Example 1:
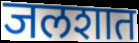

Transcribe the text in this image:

जलशात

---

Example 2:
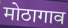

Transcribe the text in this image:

मोठागाव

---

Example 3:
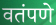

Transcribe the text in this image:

वतंपणे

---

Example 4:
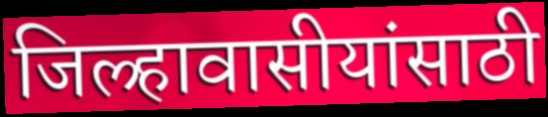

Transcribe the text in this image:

जिल्हावासीयांसाठी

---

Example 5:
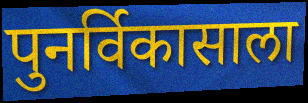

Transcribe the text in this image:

पुनर्विकासाला